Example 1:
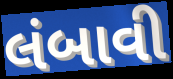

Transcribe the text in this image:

લંબાવી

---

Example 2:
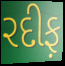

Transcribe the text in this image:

રદીફ઼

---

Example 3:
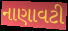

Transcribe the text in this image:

નાણાવટી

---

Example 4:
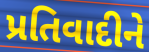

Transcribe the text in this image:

પ્રતિવાદીને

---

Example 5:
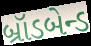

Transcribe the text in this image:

બ્રૉડબેન્ડ